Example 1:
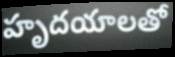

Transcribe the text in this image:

హృదయాలతో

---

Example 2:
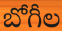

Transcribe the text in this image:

బోగీల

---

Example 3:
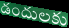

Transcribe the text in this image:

డందులకు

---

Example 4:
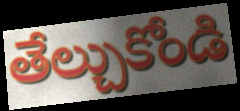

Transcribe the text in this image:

తేల్చుకోండి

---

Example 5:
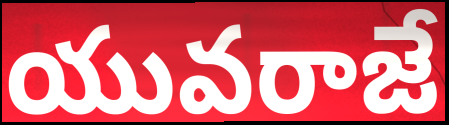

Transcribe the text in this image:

యువరాజే